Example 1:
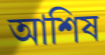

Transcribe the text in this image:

আশিষ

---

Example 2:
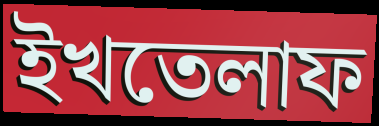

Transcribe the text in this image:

ইখতেলাফ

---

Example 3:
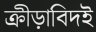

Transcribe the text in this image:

ক্রীড়াবিদই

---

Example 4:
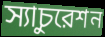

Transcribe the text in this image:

স্যাচুরেশন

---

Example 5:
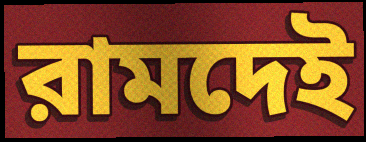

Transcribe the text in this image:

রামদেই